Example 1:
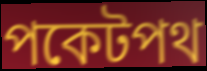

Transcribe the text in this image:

পকেটপথ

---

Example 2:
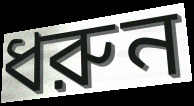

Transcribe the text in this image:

ধরুন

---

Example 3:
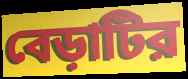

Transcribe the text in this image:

বেড়াটির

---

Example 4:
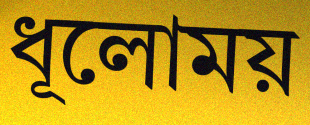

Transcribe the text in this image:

ধূলোময়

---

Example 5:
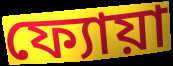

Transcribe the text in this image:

ফ্যোয়া